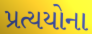
પ્રત્યયોના